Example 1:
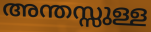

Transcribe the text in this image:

അന്തസ്സുള്ള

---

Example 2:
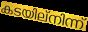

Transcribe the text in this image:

കടയില്നിന്ന്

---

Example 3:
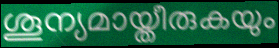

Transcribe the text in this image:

ശൂന്യമായ്തീരുകയും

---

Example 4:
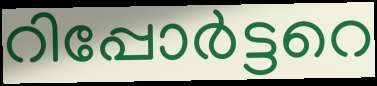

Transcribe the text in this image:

റിപ്പോർട്ടറെ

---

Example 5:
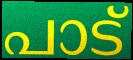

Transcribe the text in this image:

പാട്